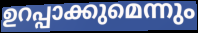
ഉറപ്പാക്കുമെന്നും